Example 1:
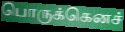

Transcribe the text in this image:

பொருக்கெனச்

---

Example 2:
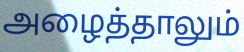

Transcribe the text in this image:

அழைத்தாலும்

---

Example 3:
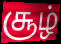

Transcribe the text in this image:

சூழ்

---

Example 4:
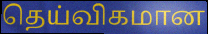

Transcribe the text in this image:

தெய்விகமான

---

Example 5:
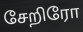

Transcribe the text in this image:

சேறிரோ